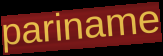
pariname